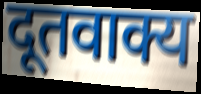
दूतवाक्य